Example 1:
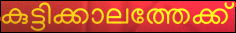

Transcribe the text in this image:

കുട്ടിക്കാലത്തേക്ക്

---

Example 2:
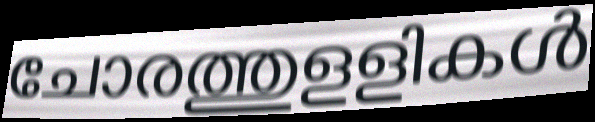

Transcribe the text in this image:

ചോരത്തുളളികൾ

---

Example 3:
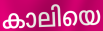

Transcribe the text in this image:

കാലിയെ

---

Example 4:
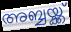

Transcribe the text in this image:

അബ്ബയ്ക്ക്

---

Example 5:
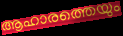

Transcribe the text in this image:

ആഹാരത്തെയും